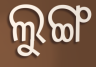
ଲୁଙ୍ଗ